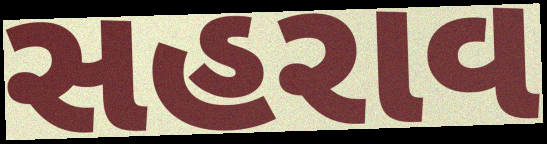
સહરાવ